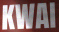
KWAI